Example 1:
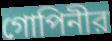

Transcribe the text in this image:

গোপিনীর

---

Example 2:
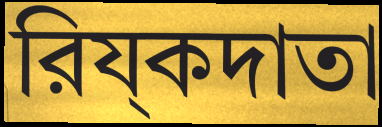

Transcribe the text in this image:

রিয্কদাতা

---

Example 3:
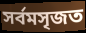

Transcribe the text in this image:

সর্বমসৃজত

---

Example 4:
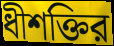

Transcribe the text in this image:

ধীশক্তির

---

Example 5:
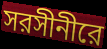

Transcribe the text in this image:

সরসীনীরে